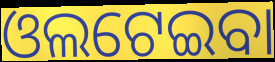
ଓଲଟେଇବା